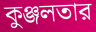
কুঞ্জলতার